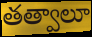
తత్వాలూ